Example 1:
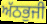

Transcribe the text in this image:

ਅੱਠਭੁਜੀ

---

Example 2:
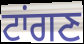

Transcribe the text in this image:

ਟਾਂਗਣ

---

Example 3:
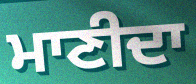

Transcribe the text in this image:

ਮਾਣੀਦਾ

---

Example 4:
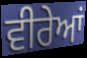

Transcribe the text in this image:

ਵੀਰੇਆਂ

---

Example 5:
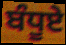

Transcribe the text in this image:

ਬੰਧੂਏ